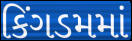
કિંગડમમાં